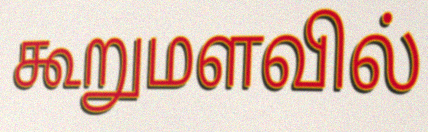
கூறுமளவில்